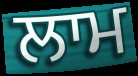
ਲਾਮ